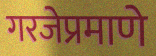
गरजेप्रमाणे